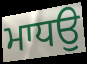
ਮਾਧਉ